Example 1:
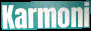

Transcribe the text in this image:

Karmoni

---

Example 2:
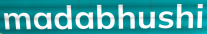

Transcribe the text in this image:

madabhushi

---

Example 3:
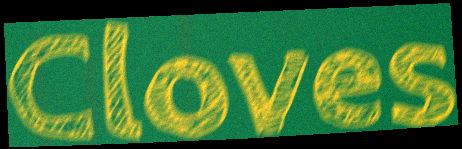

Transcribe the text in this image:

Cloves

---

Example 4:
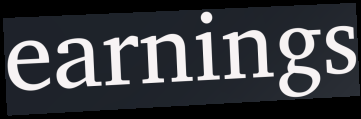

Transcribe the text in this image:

earnings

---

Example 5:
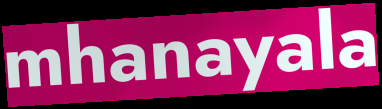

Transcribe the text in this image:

mhanayala